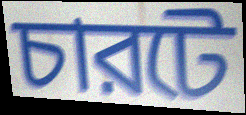
চারটে